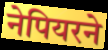
नेपियरने